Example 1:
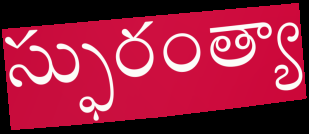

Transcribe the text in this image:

స్ఫురంత్యా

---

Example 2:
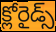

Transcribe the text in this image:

క్లోరైడ్స్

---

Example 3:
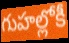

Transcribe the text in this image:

గుహల్లోకీ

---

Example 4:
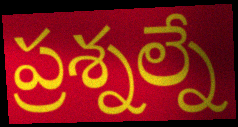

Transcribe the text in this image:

ప్రశ్నల్నే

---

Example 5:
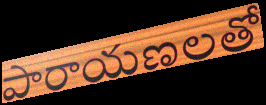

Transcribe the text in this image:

పారాయణలతో